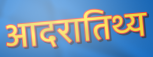
आदरातिथ्य